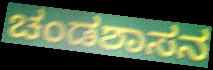
ಚಂಡಶಾಸನ